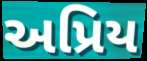
અપ્રિય